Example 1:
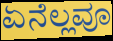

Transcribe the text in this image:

ಏನೆಲ್ಲವೂ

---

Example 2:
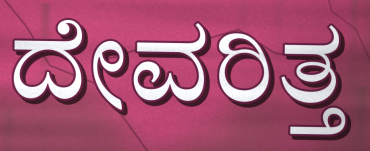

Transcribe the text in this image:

ದೇವರಿತ್ತ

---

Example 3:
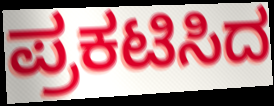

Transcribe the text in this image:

ಪ್ರಕಟಿಸಿದ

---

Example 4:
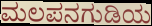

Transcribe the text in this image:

ಮಲಪನಗುಡಿಯ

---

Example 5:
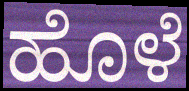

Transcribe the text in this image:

ಹೊಳೆ